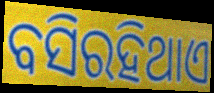
ବସିରହିଥାଏ